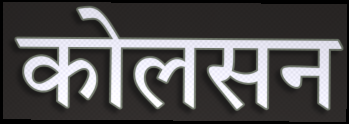
कोलसन